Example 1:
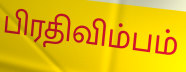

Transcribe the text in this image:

பிரதிவிம்பம்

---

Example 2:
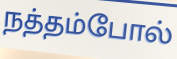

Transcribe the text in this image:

நத்தம்போல்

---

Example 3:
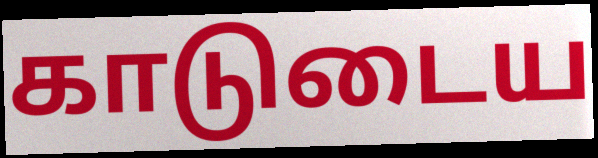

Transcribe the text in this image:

காடுடைய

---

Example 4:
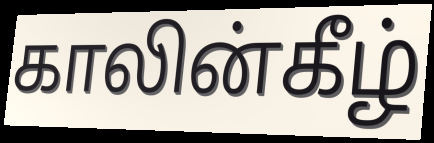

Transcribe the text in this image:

காலின்கீழ்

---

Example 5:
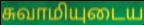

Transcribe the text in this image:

சுவாமியுடைய